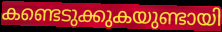
കണ്ടെടുക്കുകയുണ്ടായി